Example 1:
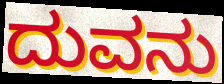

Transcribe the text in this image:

ದುವನು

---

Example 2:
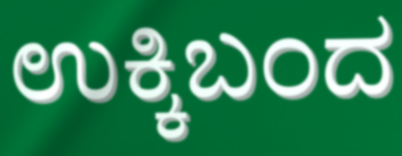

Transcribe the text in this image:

ಉಕ್ಕಿಬಂದ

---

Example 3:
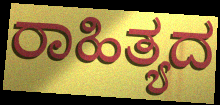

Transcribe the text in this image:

ರಾಹಿತ್ಯದ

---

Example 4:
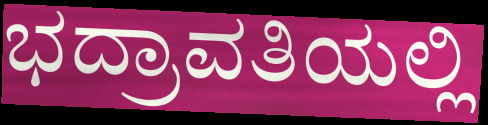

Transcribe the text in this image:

ಭದ್ರಾವತಿಯಲ್ಲಿ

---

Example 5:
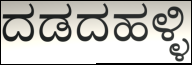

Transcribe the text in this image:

ದಡದಹಳ್ಳಿ